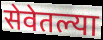
सेवेतल्या